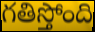
గతిస్తోంది